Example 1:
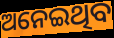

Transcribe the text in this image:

ଅନେଇଥିବ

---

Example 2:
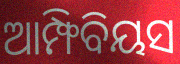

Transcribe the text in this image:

ଆମ୍ଫିବିୟସ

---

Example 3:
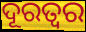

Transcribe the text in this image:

ଦୂରତ୍ଵର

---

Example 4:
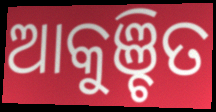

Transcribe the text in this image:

ଆକୁଞ୍ଚିତ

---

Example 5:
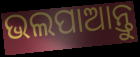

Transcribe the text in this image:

ଭଲପାଆନ୍ତୁ